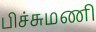
பிச்சுமணி